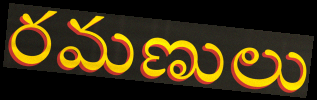
రమణులు